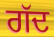
ਗੱਦ